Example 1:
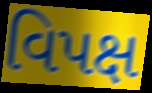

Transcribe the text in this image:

વિપક્ષ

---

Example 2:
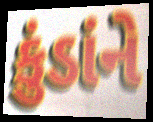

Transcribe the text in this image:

કુંડાંને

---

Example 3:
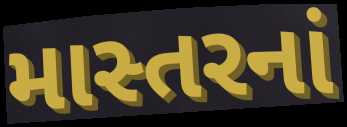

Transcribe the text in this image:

માસ્તરનાં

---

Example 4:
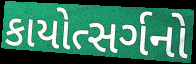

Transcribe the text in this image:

કાયોત્સર્ગનો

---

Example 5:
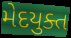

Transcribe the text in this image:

મેદયુક્ત